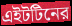
এইটটিনের